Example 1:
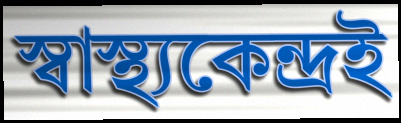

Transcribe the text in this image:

স্বাস্থ্যকেন্দ্ৰই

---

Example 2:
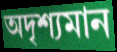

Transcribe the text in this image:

অদৃশ্যমান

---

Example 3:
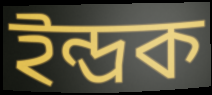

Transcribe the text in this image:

ইন্দ্ৰক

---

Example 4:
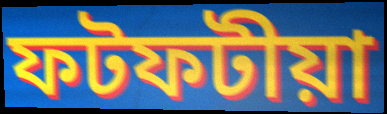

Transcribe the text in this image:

ফটফটীয়া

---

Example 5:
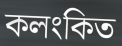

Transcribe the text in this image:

কলংকিত